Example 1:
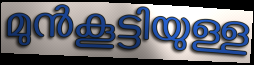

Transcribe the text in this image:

മുൻകൂട്ടിയുള്ള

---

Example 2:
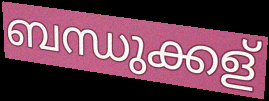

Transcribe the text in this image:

ബന്ധുക്കള്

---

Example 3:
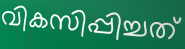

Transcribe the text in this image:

വികസിപ്പിച്ചത്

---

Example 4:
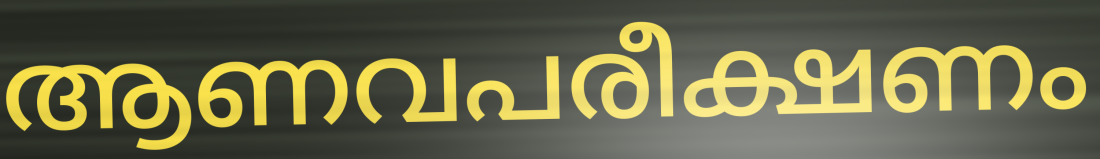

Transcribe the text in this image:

ആണവപരീക്ഷണം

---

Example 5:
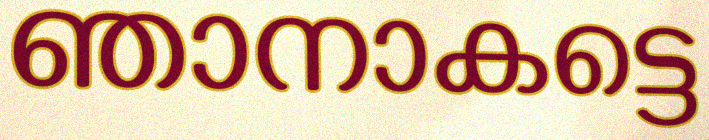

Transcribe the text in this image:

ഞാനാകട്ടെ